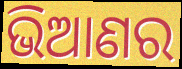
ଭିଆଣର